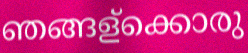
ഞങ്ങള്ക്കൊരു